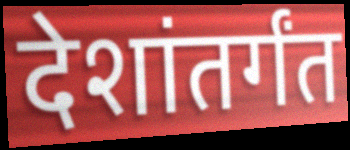
देशांतर्गंत